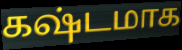
கஷ்டமாக